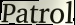
Patrol